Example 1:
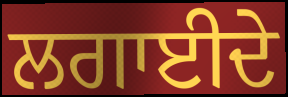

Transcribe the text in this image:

ਲਗਾਈਦੇ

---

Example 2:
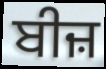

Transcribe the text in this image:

ਬੀਜ਼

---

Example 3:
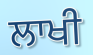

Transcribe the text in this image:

ਲਾਖੀ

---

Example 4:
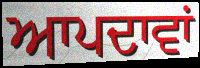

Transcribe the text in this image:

ਆਪਦਾਵਾਂ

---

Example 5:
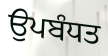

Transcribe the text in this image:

ਉਪਬੰਧਤ